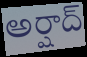
అర్షాద్